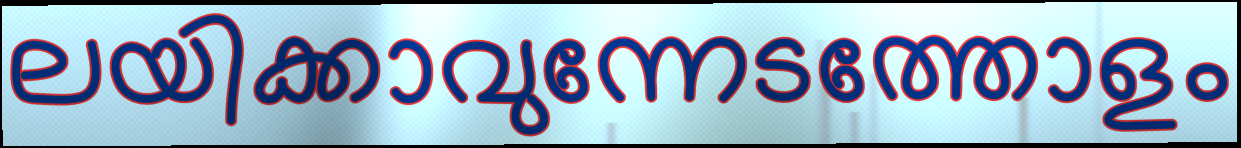
ലയിക്കാവുന്നേടത്തോളം